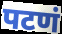
पटणं